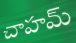
చాహమ్